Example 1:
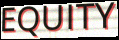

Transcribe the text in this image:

EQUITY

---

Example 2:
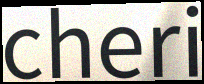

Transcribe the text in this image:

cheri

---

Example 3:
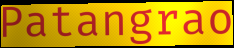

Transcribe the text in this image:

Patangrao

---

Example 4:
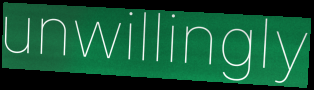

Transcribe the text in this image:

unwillingly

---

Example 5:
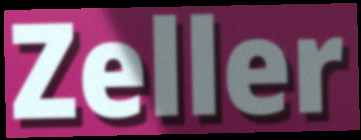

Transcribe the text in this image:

Zeller